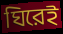
ঘিরেই